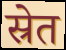
स्रेत